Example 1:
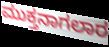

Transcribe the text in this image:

ಮುಕ್ತನಾಗಲಾರ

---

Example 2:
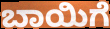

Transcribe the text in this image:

ಬಾಯಿಗೆ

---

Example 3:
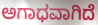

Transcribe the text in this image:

ಅಗಾಧವಾಗಿದೆ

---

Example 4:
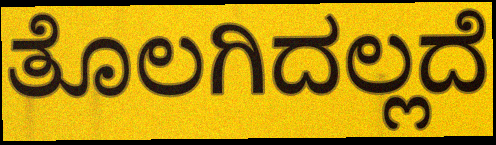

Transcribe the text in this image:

ತೊಲಗಿದಲ್ಲದೆ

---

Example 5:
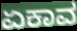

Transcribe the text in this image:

ಏಕಾವ